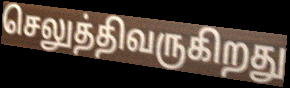
செலுத்திவருகிறது